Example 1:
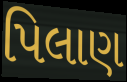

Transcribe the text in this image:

પિલાણ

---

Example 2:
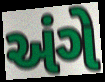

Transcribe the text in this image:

અંગે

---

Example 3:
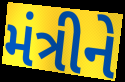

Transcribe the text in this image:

મંત્રીને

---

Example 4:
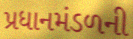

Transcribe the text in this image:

પ્રધાનમંડળની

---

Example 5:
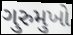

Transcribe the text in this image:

ગુરુમુખો